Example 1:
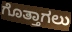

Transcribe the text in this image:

ಗೊತ್ತಾಗಲು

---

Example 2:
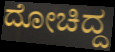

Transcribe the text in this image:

ದೋಚಿದ್ದ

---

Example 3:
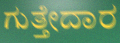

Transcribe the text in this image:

ಗುತ್ತೇದಾರ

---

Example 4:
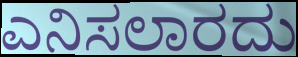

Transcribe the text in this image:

ಎನಿಸಲಾರದು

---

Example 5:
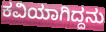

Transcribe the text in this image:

ಕವಿಯಾಗಿದ್ದನು